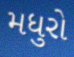
મધુરો